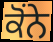
ਕੋਂਨੇ